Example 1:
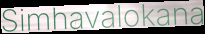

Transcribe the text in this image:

Simhavalokana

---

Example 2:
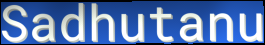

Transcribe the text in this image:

Sadhutanu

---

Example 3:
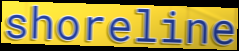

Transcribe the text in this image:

shoreline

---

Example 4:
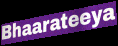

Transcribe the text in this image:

Bhaarateeya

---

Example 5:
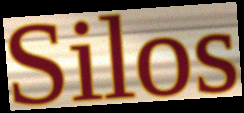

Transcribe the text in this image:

Silos